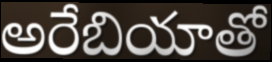
అరేబియాతో